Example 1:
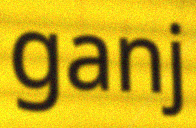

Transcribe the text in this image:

ganj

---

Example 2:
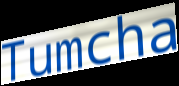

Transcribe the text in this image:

Tumcha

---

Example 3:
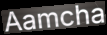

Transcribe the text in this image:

Aamcha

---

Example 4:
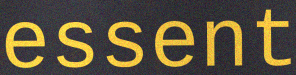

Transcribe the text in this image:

essent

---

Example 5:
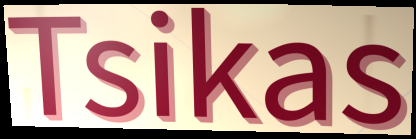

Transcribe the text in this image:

Tsikas